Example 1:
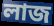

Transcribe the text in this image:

লাজ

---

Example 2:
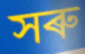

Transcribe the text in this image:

সৰু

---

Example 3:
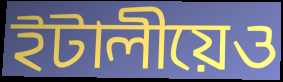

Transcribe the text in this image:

ইটালীয়েও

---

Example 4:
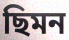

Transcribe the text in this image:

ছিমন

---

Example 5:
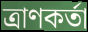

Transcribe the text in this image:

ত্ৰাণকৰ্তা